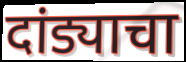
दांड्याचा